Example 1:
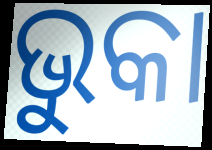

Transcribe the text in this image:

ଭୁକା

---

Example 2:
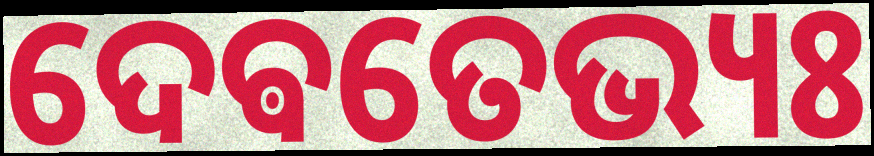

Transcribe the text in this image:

ଦେଵତେଭ୍ୟଃ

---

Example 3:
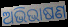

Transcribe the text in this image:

ଅଭିଭାଷଣ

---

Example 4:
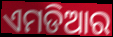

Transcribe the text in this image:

ଏମଡିଆର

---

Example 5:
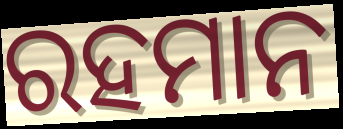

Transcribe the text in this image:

ରହମାନ